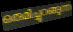
ഒരുമിച്ചുറങ്ങുന്ന